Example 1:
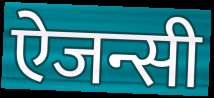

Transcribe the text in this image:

ऐजन्सी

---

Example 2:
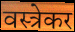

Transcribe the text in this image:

वस्त्रेकर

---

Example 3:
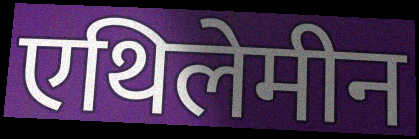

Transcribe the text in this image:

एथिलेमीन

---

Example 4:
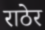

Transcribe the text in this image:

राठेर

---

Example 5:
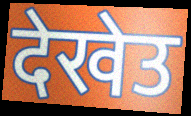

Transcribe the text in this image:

देखेउ